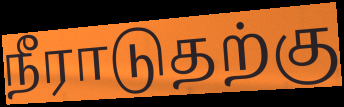
நீராடுதற்கு